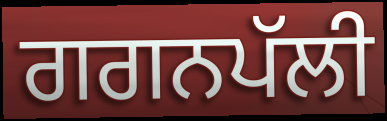
ਗਗਨਪੱਲੀ